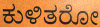
ಕುಳಿತರೋ